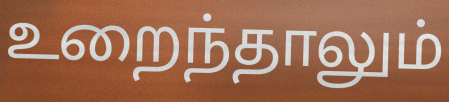
உறைந்தாலும்